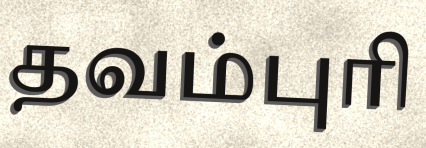
தவம்புரி